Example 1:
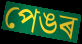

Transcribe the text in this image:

পেঙৰ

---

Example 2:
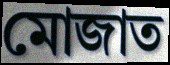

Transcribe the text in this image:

মোজাত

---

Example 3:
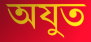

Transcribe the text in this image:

অযুত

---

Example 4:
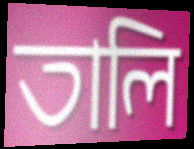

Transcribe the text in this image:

তালি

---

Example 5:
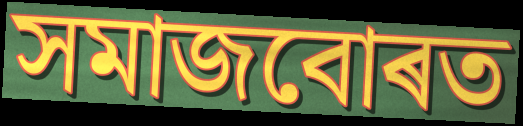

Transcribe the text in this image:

সমাজবোৰত